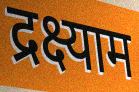
द्रक्ष्याम